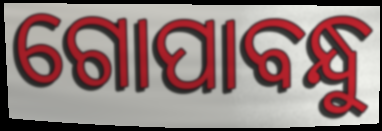
ଗୋପାବନ୍ଧୁ